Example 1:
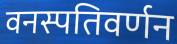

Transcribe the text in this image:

वनस्पतिवर्णन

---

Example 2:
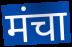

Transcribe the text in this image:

मंचा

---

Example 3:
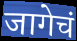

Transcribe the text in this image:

जागेचं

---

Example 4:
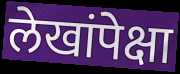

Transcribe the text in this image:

लेखांपेक्षा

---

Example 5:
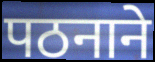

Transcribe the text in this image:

पठनाने